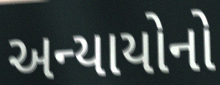
અન્યાયોનો